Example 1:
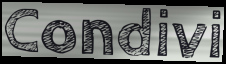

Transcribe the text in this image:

Condivi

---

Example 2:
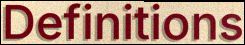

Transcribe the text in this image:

Definitions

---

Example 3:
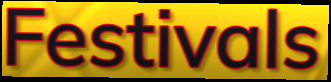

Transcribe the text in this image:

Festivals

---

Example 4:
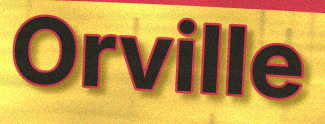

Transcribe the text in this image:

Orville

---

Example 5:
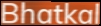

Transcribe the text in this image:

Bhatkal